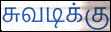
சுவடிக்கு